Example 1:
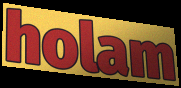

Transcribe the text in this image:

holam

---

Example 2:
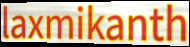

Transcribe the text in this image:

laxmikanth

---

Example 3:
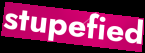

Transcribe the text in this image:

stupefied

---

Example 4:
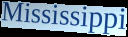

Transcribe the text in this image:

Mississippi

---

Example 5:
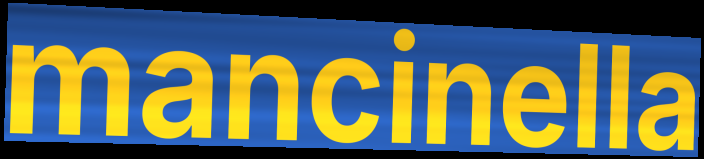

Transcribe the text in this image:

mancinella